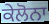
ਕੇਲੋਨਾ